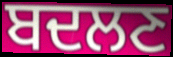
ਬਦਲਣ